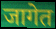
जागेत